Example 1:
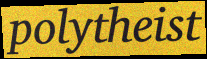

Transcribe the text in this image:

polytheist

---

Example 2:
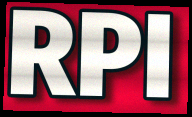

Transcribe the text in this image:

RPI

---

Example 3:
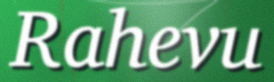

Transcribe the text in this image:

Rahevu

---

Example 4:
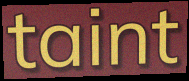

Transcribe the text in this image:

taint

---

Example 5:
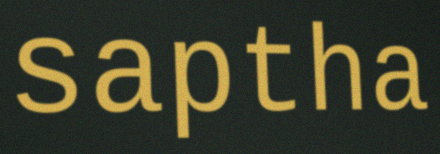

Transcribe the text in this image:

saptha